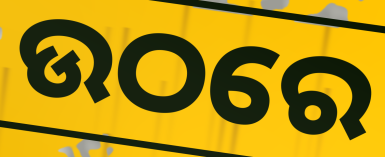
ଉଠରେ